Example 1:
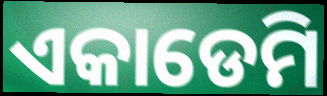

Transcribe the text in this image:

ଏକାଡେମି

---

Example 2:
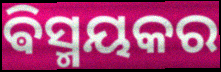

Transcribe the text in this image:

ଵିସ୍ମୟକର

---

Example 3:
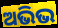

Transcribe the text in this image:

ଅଭିଭ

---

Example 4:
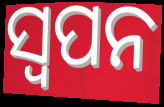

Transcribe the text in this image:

ସ୍ବପନ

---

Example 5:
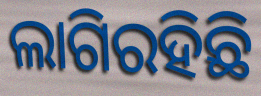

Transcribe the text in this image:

ଲାଗିରହିଛି